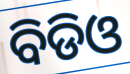
ବିଡିଓ